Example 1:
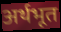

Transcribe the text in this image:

अर्थभूत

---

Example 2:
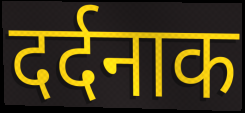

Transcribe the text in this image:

दर्दनाक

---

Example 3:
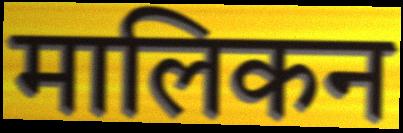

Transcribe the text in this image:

मालिकन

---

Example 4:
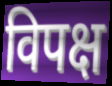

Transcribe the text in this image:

विपक्ष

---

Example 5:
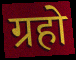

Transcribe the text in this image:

ग्रहो